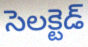
సెలక్టెడ్